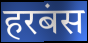
हरबंस